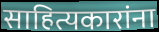
साहित्यकारांना